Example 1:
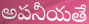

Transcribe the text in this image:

అపనీయతే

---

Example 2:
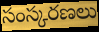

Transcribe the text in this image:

సంస్కరణలు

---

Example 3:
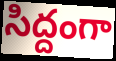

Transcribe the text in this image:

సిద్దంగా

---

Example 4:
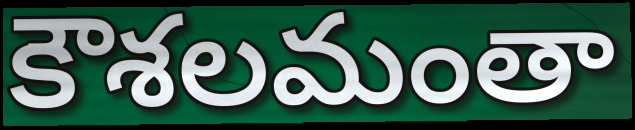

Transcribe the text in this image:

కౌశలమంతా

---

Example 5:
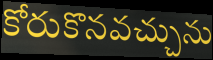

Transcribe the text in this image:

కోరుకొనవచ్చును